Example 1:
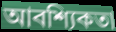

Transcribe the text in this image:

আবশ্যিকতা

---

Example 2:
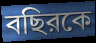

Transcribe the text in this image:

বছিরকে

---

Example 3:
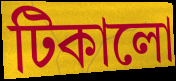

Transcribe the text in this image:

টিকালো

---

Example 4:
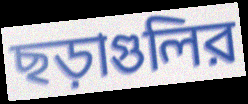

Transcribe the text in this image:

ছড়াগুলির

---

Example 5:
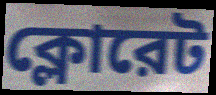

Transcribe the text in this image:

ক্লোরেট